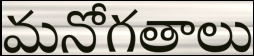
మనోగతాలు